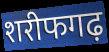
शरीफगढ़